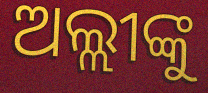
ଅଲ୍ଲୀଙ୍କୁ